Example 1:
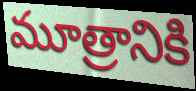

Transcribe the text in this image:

మూత్రానికి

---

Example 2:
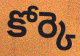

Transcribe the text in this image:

కోర్కె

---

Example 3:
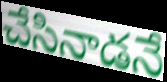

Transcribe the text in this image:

చేసినాడనే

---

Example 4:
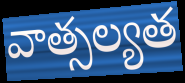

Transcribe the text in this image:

వాత్సల్యత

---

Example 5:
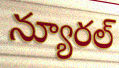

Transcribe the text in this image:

న్యూరల్